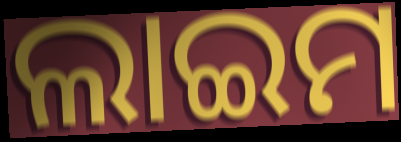
ଲାଇମ